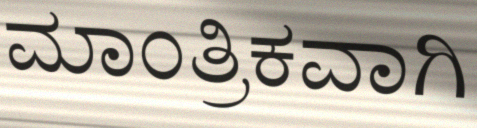
ಮಾಂತ್ರಿಕವಾಗಿ